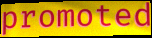
promoted